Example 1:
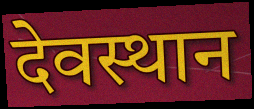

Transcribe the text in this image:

देवस्थान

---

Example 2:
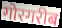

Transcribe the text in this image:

गोरगरीब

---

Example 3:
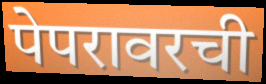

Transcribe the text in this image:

पेपरावरची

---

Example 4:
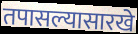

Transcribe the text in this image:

तपासल्यासारखे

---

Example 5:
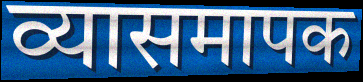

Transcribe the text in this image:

व्यासमापक